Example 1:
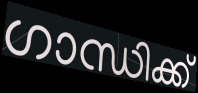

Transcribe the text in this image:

ഗാന്ധിക്ക്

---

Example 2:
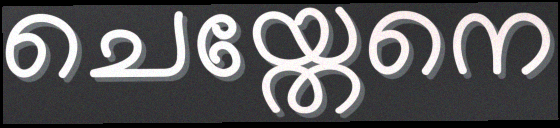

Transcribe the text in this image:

ചെയ്തേനെ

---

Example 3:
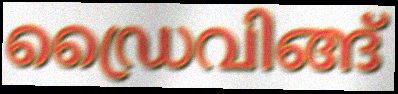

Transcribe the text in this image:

ഡ്രൈവിങ്ങ്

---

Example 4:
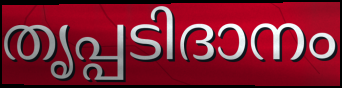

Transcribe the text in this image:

തൃപ്പടിദാനം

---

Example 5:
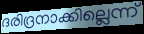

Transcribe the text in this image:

ദരിദ്രനാക്കില്ലെന്ന്